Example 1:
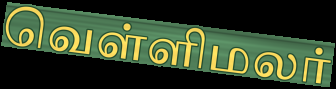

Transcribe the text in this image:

வெள்ளிமலர்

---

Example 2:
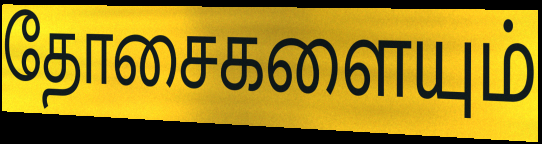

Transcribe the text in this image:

தோசைகளையும்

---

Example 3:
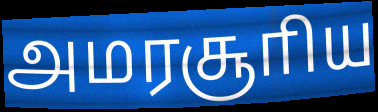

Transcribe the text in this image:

அமரசூரிய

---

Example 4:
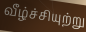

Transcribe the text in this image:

வீழ்ச்சியுற்று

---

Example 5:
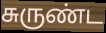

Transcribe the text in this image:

சுருண்ட